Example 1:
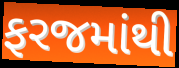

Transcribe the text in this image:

ફરજમાંથી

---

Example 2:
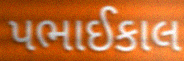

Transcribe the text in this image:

પભાઈકાલ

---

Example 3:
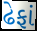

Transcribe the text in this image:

ઢેફાં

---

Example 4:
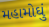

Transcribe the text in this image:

મહામોઘું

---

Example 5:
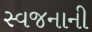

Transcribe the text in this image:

સ્વજનાની